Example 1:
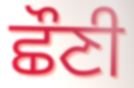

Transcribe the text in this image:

ਛੌਣੀ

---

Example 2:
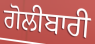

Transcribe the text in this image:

ਗੋਲੀਬਾਰੀ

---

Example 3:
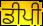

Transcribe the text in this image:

ਡੀਪੀ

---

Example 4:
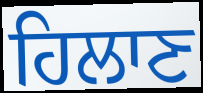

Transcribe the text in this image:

ਹਿਲਾਣ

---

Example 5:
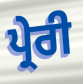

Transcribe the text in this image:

ਪ੍ਰੇਰੀ